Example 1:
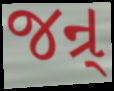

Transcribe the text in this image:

જન્ર્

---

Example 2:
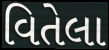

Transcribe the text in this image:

વિતેલા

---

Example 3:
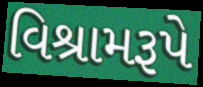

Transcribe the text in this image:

વિશ્રામરૂપે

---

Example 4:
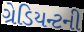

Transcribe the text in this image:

ગ્રેડિયન્ટની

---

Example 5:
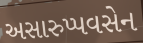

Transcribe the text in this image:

અસારુપ્પવસેન